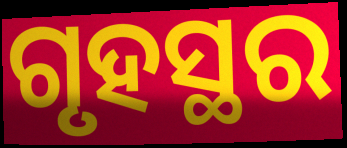
ଗୃହସ୍ଥର